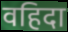
वहिदा